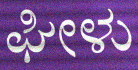
ಘೀಳು